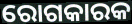
ରୋଗକାରକ